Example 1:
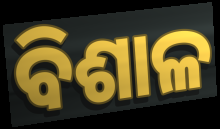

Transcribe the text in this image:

ବିଶାଳ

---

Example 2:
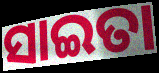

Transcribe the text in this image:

ସାଇତା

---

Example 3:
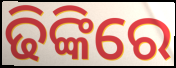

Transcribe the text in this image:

ଢିଙ୍କିରେ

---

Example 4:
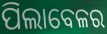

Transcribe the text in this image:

ପିଲାବେଳର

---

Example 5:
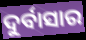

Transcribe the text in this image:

ଦୁର୍ବାସାର